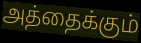
அத்தைக்கும்